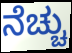
ನೆಚ್ಚು